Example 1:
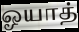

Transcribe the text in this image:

ஓயாத்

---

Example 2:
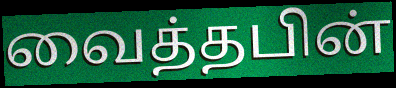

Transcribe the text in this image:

வைத்தபின்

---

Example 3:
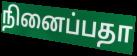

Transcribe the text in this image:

நினைப்பதா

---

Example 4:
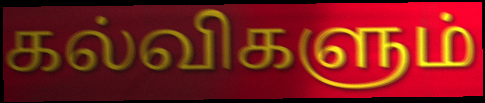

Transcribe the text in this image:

கல்விகளும்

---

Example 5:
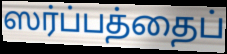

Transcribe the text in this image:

ஸர்ப்பத்தைப்